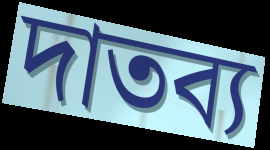
দাতব্য